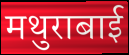
मथुराबाई